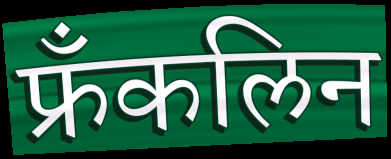
फ्रँकलिन